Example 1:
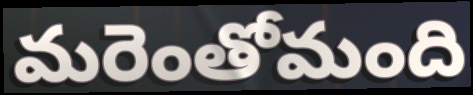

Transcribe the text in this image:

మరెంతోమంది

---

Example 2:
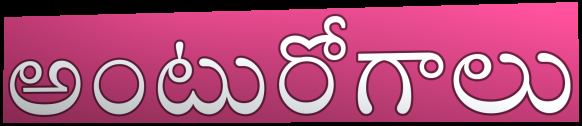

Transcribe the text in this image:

అంటురోగాలు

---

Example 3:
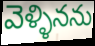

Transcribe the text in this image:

వెళ్ళినను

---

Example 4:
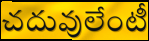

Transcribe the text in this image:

చదువులేంటీ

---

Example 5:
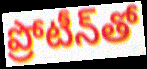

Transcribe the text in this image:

ప్రోటీన్‌తో